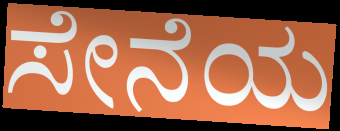
ಸೇನೆಯ